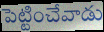
పెట్టించేవాడు